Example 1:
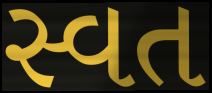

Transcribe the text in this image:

સ્વત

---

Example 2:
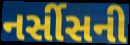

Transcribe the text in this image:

નર્સીસની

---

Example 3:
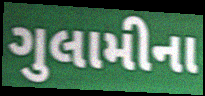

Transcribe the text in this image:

ગુલામીના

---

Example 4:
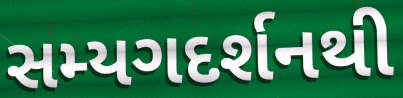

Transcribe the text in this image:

સમ્યગદર્શનથી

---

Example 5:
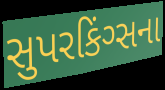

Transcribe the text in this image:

સુપરકિંગ્સના